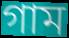
গাম